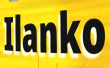
Ilanko